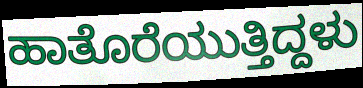
ಹಾತೊರೆಯುತ್ತಿದ್ದಳು